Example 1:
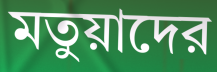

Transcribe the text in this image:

মতুয়াদের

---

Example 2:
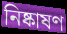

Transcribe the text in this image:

নিষ্কাষণ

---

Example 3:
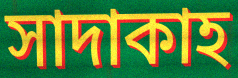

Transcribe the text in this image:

সাদাকাহ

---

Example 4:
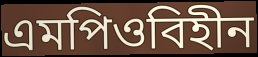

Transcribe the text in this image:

এমপিওবিহীন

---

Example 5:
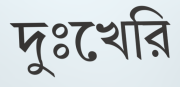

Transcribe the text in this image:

দুঃখেরি